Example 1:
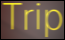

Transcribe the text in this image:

Trip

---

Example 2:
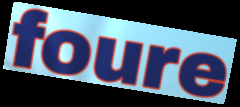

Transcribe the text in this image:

foure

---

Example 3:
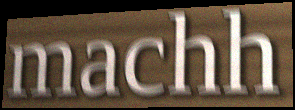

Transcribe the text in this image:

machh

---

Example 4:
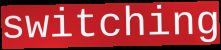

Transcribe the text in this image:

switching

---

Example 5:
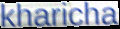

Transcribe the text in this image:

kharicha